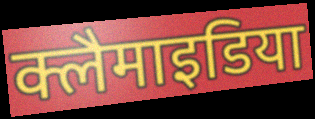
क्लैमाइडिया